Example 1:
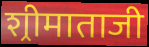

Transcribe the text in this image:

श्रीमाताजी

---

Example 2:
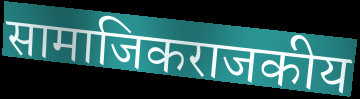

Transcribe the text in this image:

सामाजिकराजकीय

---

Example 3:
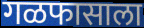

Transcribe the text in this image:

गळफासाला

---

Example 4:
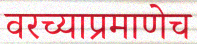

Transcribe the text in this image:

वरच्याप्रमाणेच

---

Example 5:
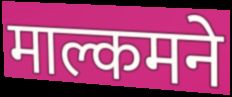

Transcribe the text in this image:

माल्कमने